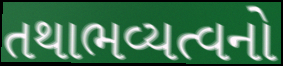
તથાભવ્યત્વનો